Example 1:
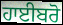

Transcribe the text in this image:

ਹਾਈਬਰੋ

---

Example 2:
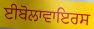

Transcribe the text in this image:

ਈਬੋਲਾਵਾਇਰਸ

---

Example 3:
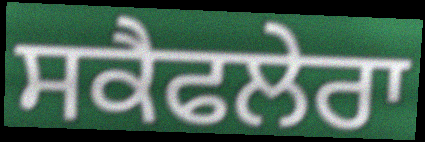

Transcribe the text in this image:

ਸਕੈਫਲੇਰਾ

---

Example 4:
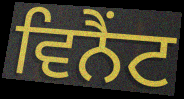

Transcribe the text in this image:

ਵਿਨੈਂਟ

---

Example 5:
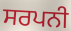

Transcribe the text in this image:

ਸਰਪਨੀ